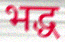
भद्ध